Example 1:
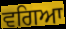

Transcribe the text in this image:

ਵਗਿਆ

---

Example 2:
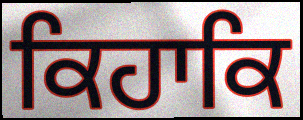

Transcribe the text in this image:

ਕਿਹਾਕਿ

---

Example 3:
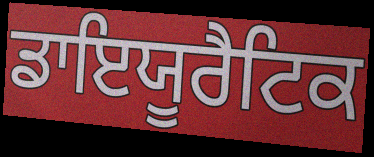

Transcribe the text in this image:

ਡਾਇਯੂਰੈਟਿਕ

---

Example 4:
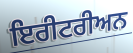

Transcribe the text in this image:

ਇਰੀਟਰੀਅਨ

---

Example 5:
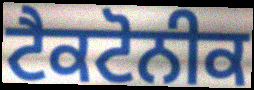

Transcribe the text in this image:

ਟੈਕਟੋਨੀਕ